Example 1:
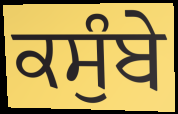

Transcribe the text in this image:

ਕਸੁੰਬੇ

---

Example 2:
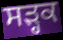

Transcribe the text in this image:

ਸੜ੍ਹਕ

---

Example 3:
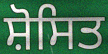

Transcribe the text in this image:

ਸ਼ੋਸਿਤ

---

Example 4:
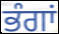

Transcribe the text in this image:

ਭੰਗਾਂ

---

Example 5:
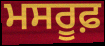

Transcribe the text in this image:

ਮਸਰੂਫ਼